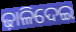
ଢ଼ାଳିଦେଇ